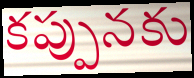
కప్పునకు